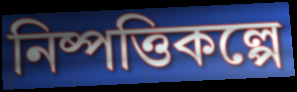
নিষ্পত্তিকল্পে